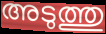
അടുത്തു